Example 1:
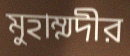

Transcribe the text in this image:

মুহাম্মদীর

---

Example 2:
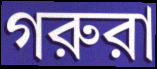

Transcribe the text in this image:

গরুরা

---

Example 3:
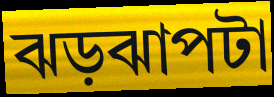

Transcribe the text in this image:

ঝড়ঝাপটা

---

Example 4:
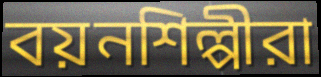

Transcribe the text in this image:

বয়নশিল্পীরা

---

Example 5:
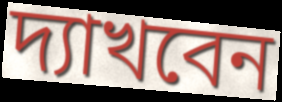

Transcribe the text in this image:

দ্যাখবেন